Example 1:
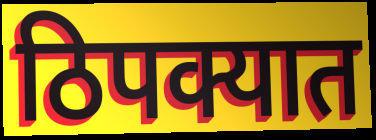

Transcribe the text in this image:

ठिपक्यात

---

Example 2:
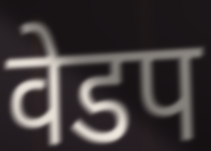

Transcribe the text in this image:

वेडप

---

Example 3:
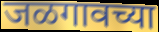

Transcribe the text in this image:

जळगावच्या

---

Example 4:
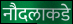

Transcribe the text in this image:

नौदलाकडे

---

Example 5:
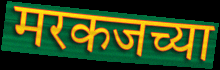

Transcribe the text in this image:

मरकजच्या